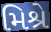
મિશ્રે